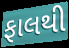
ફાલથી